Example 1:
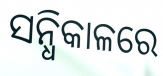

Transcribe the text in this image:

ସନ୍ଧିକାଳରେ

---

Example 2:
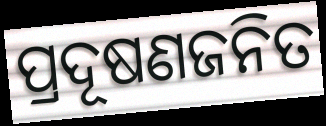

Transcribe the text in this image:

ପ୍ରଦୂଷଣଜନିତ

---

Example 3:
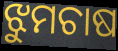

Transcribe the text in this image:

ଝୁମଚାଷ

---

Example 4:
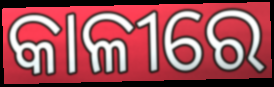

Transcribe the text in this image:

କାଳୀରେ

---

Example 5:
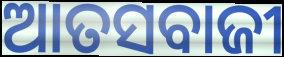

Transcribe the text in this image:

ଆତସବାଜୀ